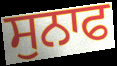
ਸੁਨਾਫ